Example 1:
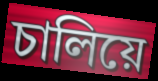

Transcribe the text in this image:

চালিয়ে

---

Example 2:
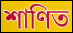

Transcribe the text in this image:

শাণিত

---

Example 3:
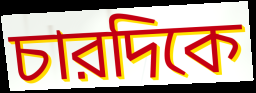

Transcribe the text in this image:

চারদিকে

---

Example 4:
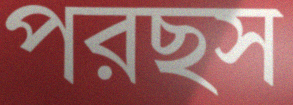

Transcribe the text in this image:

পরছস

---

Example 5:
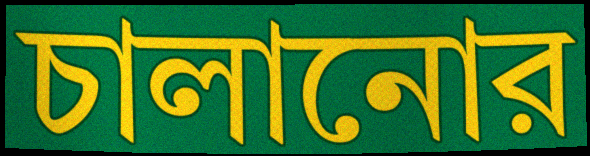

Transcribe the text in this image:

চালানোর